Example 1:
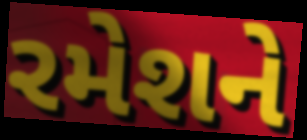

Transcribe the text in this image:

રમેશને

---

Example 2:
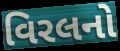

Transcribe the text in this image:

વિરલનો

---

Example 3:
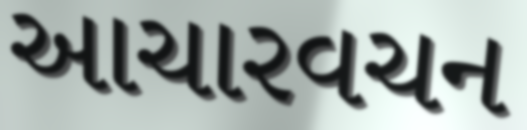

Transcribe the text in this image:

આચારવચન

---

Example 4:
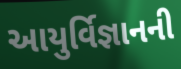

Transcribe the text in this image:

આયુર્વિજ્ઞાનની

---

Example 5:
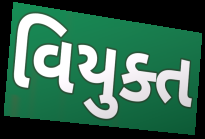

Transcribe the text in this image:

વિયુક્ત